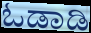
ಓಡಾಡಿ